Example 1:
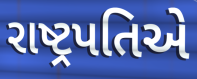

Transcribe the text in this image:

રાષ્ટ્રપતિએ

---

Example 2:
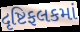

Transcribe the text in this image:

દૃષ્ટિફલકમાં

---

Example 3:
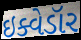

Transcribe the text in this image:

ઇક્વેડૉર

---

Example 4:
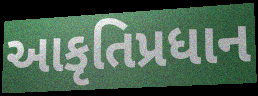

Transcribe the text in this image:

આકૃતિપ્રધાન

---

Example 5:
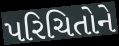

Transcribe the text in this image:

પરિચિતોને